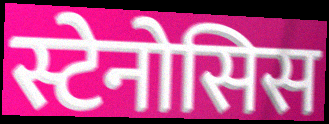
स्टेनोसिस